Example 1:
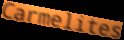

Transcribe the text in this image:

Carmelites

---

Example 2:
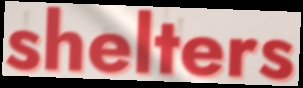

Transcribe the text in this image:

shelters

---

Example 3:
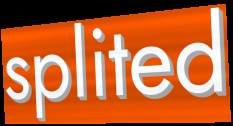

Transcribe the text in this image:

splited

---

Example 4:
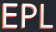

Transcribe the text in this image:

EPL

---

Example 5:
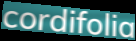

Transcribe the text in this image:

cordifolia